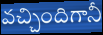
వచ్చిందిగానీ